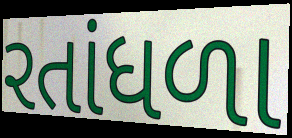
રતાંધળા